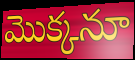
మొక్కనూ